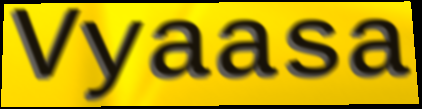
Vyaasa